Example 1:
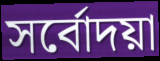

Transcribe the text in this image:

সৰ্বোদয়া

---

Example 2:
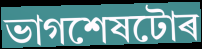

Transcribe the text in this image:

ভাগশেষটোৰ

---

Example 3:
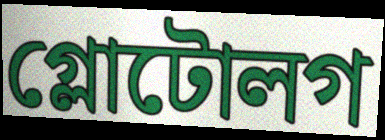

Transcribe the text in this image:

গ্লোটোলগ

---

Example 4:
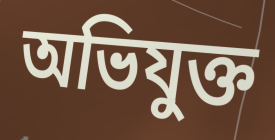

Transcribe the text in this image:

অভিযুক্ত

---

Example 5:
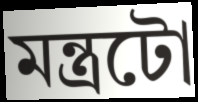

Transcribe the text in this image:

মন্ত্ৰটো